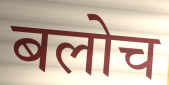
बलोच